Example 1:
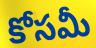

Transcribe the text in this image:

కోసమీ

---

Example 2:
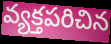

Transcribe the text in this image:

వ్యక్తపరిచిన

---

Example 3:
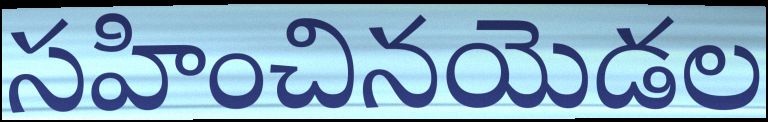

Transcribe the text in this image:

సహించినయెడల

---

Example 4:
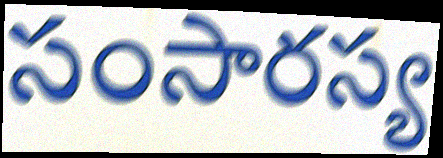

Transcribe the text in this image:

సంసారస్య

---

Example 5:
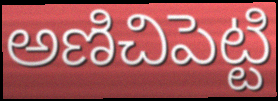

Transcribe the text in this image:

అణిచిపెట్టి